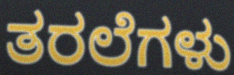
ತರಲೆಗಳು